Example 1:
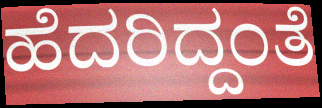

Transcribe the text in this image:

ಹೆದರಿದ್ದಂತೆ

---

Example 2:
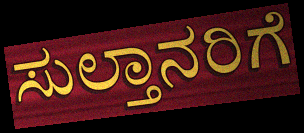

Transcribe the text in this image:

ಸುಲ್ತಾನರಿಗೆ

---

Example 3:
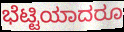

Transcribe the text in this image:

ಭೆಟ್ಟಿಯಾದರೂ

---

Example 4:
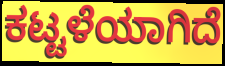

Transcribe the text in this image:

ಕಟ್ಟಳೆಯಾಗಿದೆ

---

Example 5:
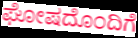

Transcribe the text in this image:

ಘೋಷದೊಂದಿಗೆ